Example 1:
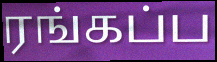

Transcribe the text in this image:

ரங்கப்ப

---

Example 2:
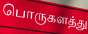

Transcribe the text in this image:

பொருகளத்து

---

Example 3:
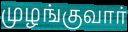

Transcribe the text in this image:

முழங்குவார்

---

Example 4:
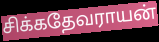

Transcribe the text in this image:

சிக்கதேவராயன்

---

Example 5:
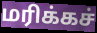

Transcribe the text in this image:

மரிக்கச்